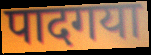
पादगया